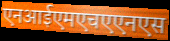
एनआईएमएचएएनएस